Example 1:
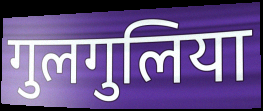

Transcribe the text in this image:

गुलगुलिया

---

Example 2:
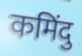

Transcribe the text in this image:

कमिंदु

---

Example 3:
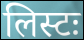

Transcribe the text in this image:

लिस्टः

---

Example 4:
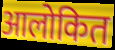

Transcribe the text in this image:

आलोकित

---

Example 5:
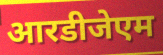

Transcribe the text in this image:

आरडीजेएम